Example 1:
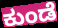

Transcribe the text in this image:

ಕುಂಡೆ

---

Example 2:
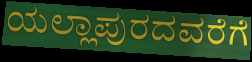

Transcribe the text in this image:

ಯಲ್ಲಾಪುರದವರೆಗೆ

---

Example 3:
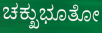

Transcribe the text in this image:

ಚಕ್ಖುಭೂತೋ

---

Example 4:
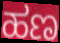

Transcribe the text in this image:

ಹಣ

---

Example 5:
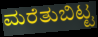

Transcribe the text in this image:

ಮರೆತುಬಿಟ್ಟ